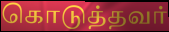
கொடுத்தவர்